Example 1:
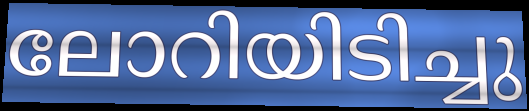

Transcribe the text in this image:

ലോറിയിടിച്ചു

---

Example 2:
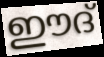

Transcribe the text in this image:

ഈദ്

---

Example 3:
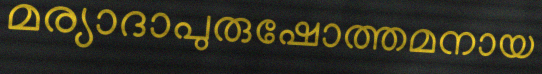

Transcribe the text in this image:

മര്യാദാപുരുഷോത്തമനായ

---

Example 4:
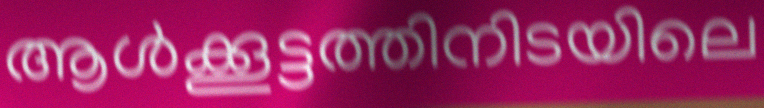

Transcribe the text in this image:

ആൾക്കൂട്ടത്തിനിടയിലെ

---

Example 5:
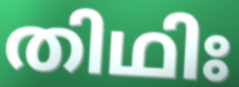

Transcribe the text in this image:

തിഥിഃ